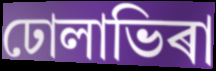
ঢোলাভিৰা